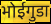
भोईगुडा